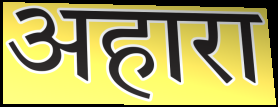
अहारा